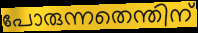
പോരുന്നതെന്തിന്